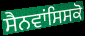
ਸੈਨਵਾਂਸਿਸਕੋ